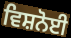
ਵਿਸ਼ਨੋਈ